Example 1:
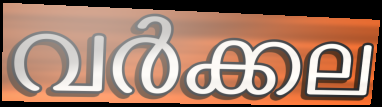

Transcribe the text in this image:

വർക്കല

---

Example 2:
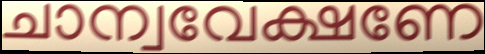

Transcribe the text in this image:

ചാന്വവേക്ഷണേ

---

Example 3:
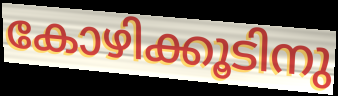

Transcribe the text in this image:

കോഴിക്കൂടിനു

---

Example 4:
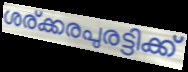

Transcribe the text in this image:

ശര്ക്കരപുരട്ടിക്ക്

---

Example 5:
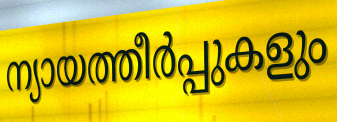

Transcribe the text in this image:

ന്യായത്തീർപ്പുകളും